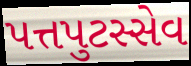
પત્તપુટસ્સેવ